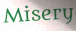
Misery